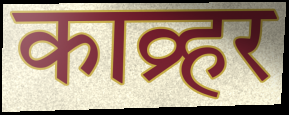
काव्र्हर